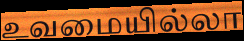
உவமையில்லா